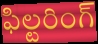
ఫిల్టరింగ్